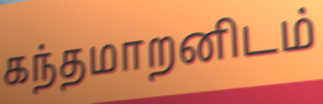
கந்தமாறனிடம்